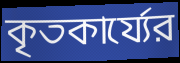
কৃতকার্য্যের